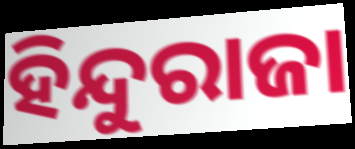
ହିନ୍ଦୁରାଜା